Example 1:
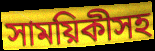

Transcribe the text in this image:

সাময়িকীসহ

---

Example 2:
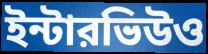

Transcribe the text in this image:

ইন্টারভিউও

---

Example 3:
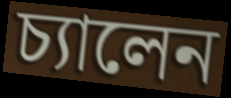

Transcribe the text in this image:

চ্যালেন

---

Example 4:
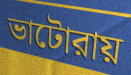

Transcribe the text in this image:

ভাটোরায়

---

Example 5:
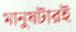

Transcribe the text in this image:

মানুষটারই